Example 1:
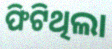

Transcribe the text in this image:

ଫିଟିଥିଲା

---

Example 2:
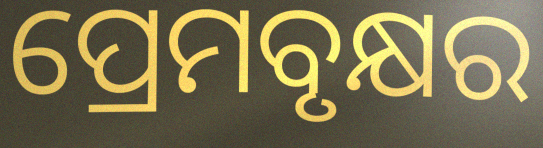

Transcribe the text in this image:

ପ୍ରେମବୃକ୍ଷର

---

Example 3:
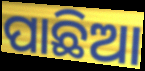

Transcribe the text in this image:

ପାଛିଆ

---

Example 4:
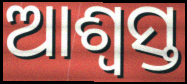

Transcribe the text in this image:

ଆଶ୍ଵସ୍ତ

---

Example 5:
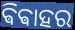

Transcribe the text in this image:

ଵିଵାହର